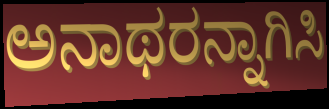
ಅನಾಥರನ್ನಾಗಿಸಿ